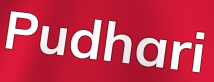
Pudhari